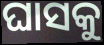
ଘାସକୁ